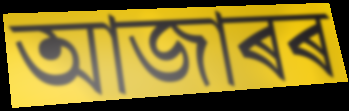
আজাৰৰ